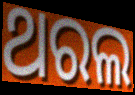
ଥରଲ